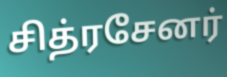
சித்ரசேனர்